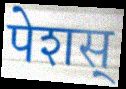
पेशस्